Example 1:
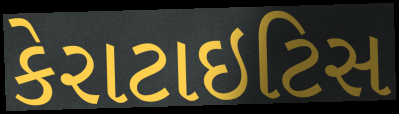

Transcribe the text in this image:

કેરાટાઇટિસ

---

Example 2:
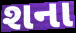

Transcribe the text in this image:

શના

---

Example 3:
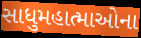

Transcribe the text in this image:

સાધુમહાત્માઓના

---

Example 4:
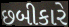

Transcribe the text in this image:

છબીકારે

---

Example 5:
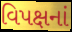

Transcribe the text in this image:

વિપક્ષનાં